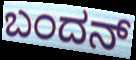
ಬಂದನ್